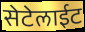
सेटेलाईट